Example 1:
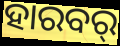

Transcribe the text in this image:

ହାରବର୍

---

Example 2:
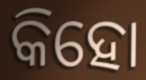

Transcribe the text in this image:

କିହୋ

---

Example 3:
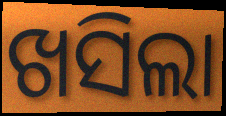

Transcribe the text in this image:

ଖସିଲା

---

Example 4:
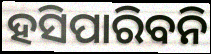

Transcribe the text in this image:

ହସିପାରିବନି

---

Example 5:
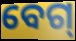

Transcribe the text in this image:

ବେଗ୍